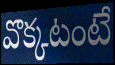
వొక్కటంటే